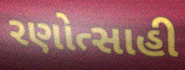
રણોત્સાહી